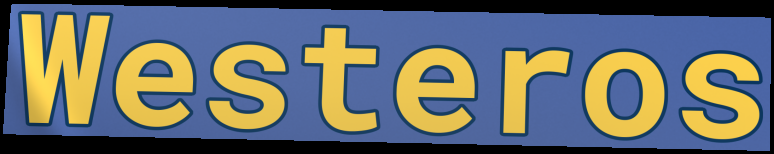
Westeros